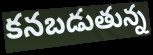
కనబడుతున్న